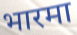
भारमा